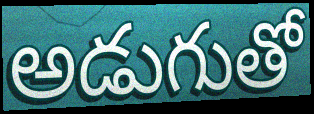
అడుగుతో